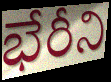
భేరీని